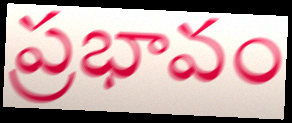
ప్రభావం